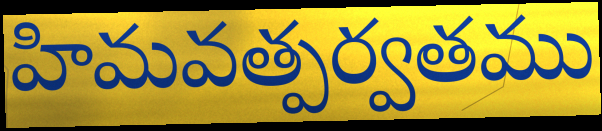
హిమవత్పర్వతము